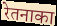
रेतनाका